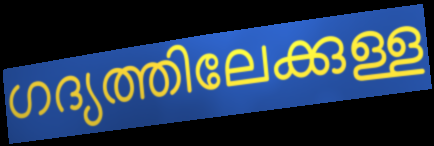
ഗദ്യത്തിലേക്കുള്ള